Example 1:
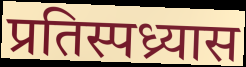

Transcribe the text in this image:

प्रतिस्पध्र्यास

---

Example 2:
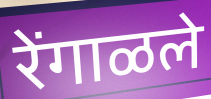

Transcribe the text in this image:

रेंगाळले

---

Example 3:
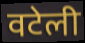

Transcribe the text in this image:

वटेली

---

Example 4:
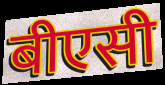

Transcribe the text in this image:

बीएसी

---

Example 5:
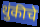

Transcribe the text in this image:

थुंकीचे